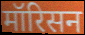
मॉरिसन